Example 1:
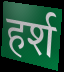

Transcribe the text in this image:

हर्श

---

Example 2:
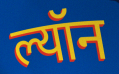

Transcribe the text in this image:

ल्यॉन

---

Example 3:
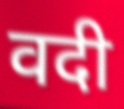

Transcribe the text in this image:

वदी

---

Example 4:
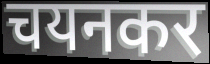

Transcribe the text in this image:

चयनकर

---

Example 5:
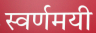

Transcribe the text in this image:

स्वर्णमयी